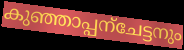
കുഞ്ഞാപ്പന്ചേട്ടനും